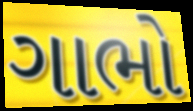
ગાભો